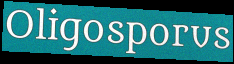
Oligosporus